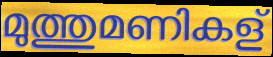
മുത്തുമണികള്